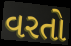
વરતો